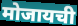
मोजायची